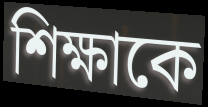
শিক্ষাকে